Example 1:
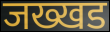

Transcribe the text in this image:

जख्खड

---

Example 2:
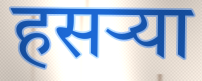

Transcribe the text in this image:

हसऱ्या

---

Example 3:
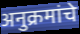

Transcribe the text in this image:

अनुक्रमांचे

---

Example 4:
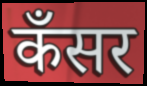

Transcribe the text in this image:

कँसर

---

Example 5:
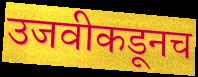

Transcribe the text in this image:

उजवीकडूनच